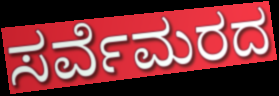
ಸರ್ವೆಮರದ